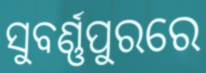
ସୁବର୍ଣ୍ଣପୁରରେ